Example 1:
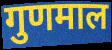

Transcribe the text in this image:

गुणमाल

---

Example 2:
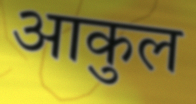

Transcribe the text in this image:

आकुल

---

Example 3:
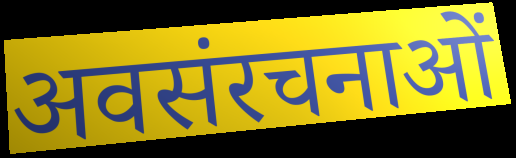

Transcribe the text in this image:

अवसंरचनाओं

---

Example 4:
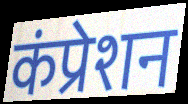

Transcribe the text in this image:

कंप्रेशन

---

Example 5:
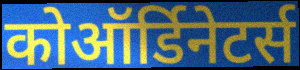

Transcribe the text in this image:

कोऑर्डिनेटर्स